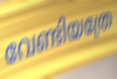
വേണ്ടിയത്രേ